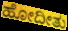
ಹೋದೀತು